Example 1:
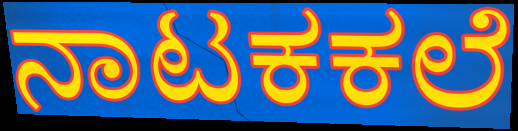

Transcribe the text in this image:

ನಾಟಕಕಲೆ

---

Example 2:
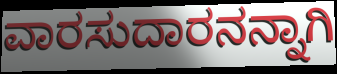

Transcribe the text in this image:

ವಾರಸುದಾರನನ್ನಾಗಿ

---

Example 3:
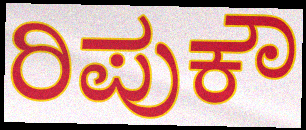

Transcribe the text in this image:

ರಿಪುಕೌ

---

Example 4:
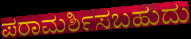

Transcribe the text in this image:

ಪರಾಮರ್ಶಿಸಬಹುದು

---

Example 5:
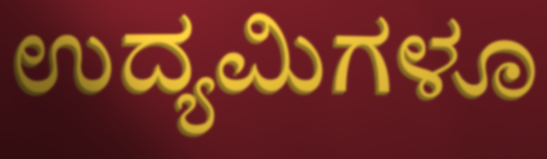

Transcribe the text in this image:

ಉದ್ಯಮಿಗಳೂ